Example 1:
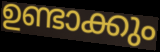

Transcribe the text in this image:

ഉണ്ടാക്കും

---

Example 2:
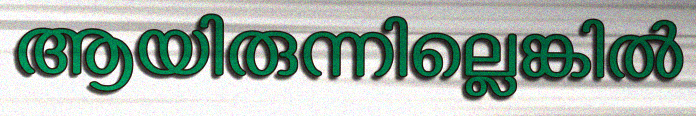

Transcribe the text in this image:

ആയിരുന്നില്ലെങ്കിൽ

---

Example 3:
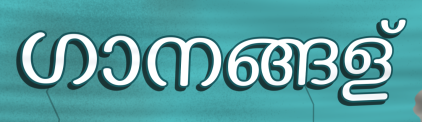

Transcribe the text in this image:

ഗാനങ്ങള്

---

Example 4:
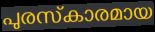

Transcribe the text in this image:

പുരസ്‌കാരമായ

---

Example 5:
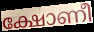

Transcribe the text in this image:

ക്ഷോണീ